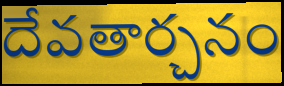
దేవతార్చనం